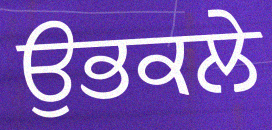
ਉਭਕਲੇ